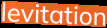
levitation